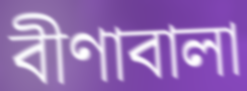
বীণাবালা